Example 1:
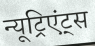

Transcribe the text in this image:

न्यूट्रिएंट्स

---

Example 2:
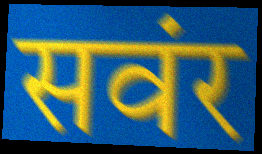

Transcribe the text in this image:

सवंर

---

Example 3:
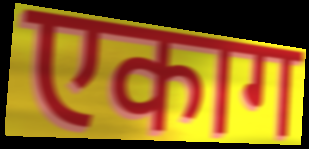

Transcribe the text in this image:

एकाग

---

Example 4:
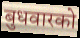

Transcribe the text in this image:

बुधवारको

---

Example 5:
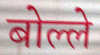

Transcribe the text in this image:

बोल्ले